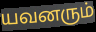
யவனரும்